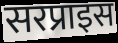
सरप्राइस